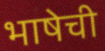
भाषेची